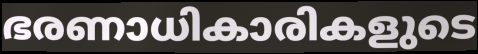
ഭരണാധികാരികളുടെ